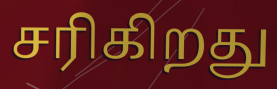
சரிகிறது